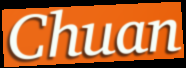
Chuan